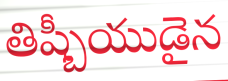
తిష్బీయుడైన